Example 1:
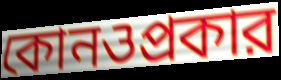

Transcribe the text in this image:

কোনওপ্রকার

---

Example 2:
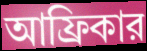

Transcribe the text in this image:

আফ্রিকার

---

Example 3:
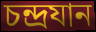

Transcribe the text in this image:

চন্দ্রযান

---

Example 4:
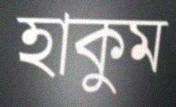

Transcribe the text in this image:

হাকুম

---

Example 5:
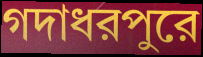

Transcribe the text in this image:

গদাধরপুরে